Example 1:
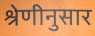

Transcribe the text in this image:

श्रेणीनुसार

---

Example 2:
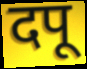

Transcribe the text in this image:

दपू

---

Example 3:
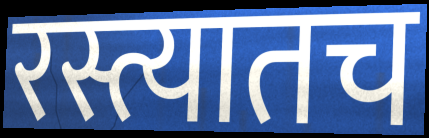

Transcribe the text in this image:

रस्त्यातच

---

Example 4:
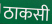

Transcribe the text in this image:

ठाकसी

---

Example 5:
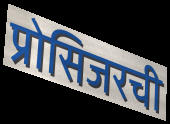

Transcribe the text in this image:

प्रोसिजरची